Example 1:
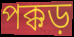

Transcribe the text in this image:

পক্কড়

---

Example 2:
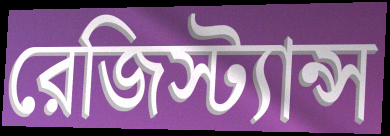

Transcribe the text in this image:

রেজিস্ট্যান্স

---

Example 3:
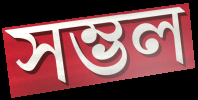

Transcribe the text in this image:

সম্ভল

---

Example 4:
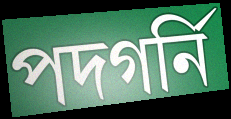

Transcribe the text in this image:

পদগর্নি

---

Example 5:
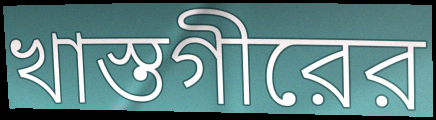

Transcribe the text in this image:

খাস্তগীরের